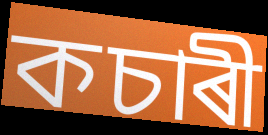
কচাৰী